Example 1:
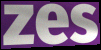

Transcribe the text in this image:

zes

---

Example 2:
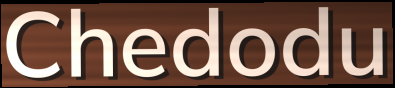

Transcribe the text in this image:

Chedodu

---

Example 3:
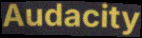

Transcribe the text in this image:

Audacity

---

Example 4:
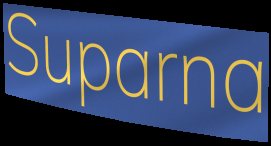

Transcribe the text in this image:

Suparna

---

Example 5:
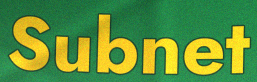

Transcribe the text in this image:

Subnet